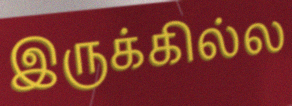
இருக்கில்ல